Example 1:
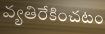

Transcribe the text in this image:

వ్యతిరేకించటం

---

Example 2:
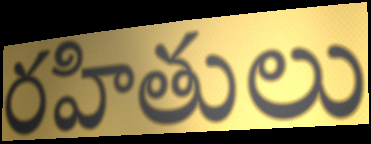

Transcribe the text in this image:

రహితులు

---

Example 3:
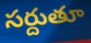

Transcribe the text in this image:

సర్దుతూ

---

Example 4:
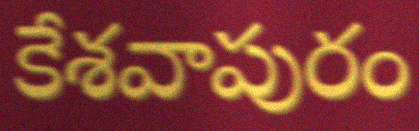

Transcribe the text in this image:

కేశవాపురం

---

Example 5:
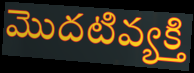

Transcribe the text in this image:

మొదటివ్యక్తి